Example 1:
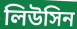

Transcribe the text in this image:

লিউসিন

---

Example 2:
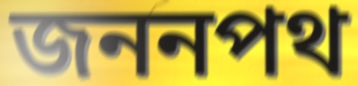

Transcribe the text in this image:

জননপথ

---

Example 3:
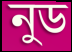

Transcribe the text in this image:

নুড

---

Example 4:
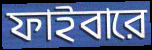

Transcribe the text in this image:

ফাইবারে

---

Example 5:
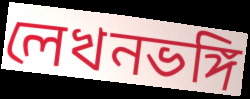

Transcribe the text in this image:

লেখনভঙ্গি